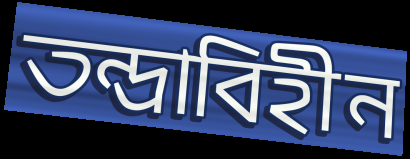
তন্দ্রাবিহীন